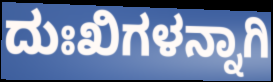
ದುಃಖಿಗಳನ್ನಾಗಿ